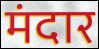
मंदार